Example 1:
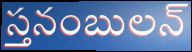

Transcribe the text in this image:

స్తనంబులన్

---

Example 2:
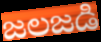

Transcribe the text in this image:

జలజడి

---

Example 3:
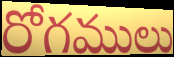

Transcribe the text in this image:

రోగములు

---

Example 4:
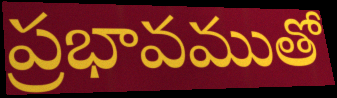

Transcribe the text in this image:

ప్రభావముతో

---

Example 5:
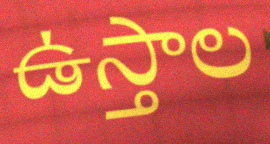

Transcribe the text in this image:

ఉస్తాల